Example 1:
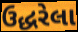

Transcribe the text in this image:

ઉદ્ધરેલા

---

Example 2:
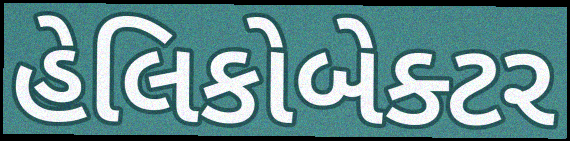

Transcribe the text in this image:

હેલિકોબેક્ટર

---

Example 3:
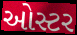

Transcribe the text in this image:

ઓસ્ટર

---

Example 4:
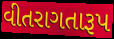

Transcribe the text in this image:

વીતરાગતારૂપ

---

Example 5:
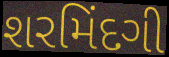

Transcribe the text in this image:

શરમિંદગી